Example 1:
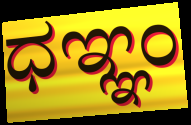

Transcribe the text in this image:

ಧಞ್ಞಂ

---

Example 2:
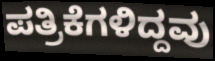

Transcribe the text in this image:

ಪತ್ರಿಕೆಗಳಿದ್ದವು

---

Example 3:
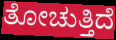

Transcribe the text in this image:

ತೋಚುತ್ತಿದೆ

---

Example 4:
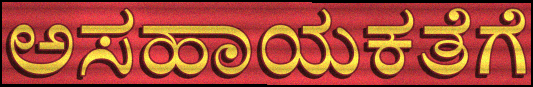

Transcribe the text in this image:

ಅಸಹಾಯಕತೆಗೆ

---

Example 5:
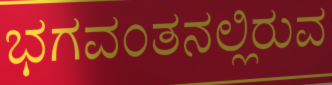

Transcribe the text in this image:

ಭಗವಂತನಲ್ಲಿರುವ